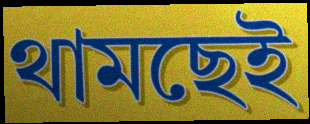
থামছেই